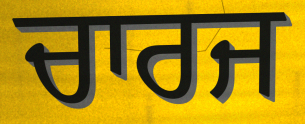
ਚਾਰਜ